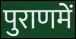
पुराणमें